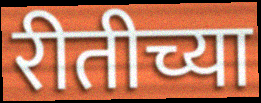
रीतीच्या